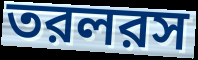
তরলরস